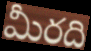
మీరది